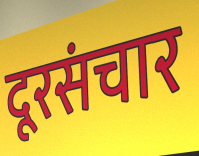
दूरसंचार